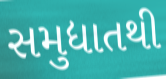
સમુદ્યાતથી